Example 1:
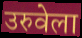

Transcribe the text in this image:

उरुवेला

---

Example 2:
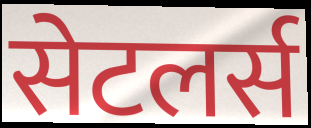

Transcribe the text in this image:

सेटलर्स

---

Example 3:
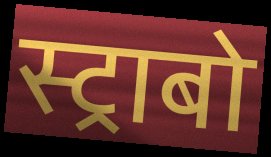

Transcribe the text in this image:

स्ट्राबो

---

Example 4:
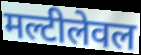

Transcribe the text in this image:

मल्टीलेवल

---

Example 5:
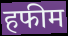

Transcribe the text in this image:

हफीम